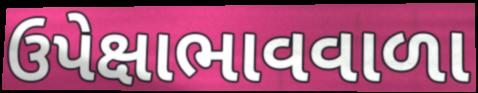
ઉપેક્ષાભાવવાળા